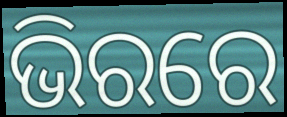
ଭିରରେ